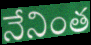
నేనింత